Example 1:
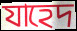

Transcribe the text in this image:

যাহেদ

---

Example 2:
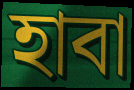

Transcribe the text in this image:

হাবা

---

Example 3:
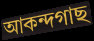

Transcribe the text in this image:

আকন্দগাছ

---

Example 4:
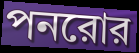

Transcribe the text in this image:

পনরোর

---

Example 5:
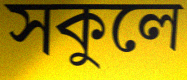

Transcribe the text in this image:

সকুলে